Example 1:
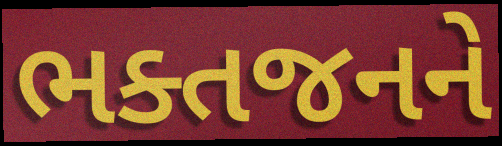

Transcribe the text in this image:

ભક્તજનને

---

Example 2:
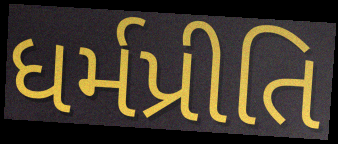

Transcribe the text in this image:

ધર્મપ્રીતિ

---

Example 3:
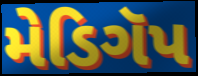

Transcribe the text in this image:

મેડિગૅપ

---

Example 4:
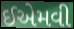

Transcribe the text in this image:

ઈએમવી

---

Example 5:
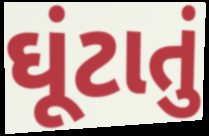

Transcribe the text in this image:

ઘૂંટાતું